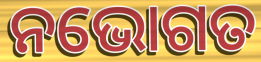
ନଭୋଗତ